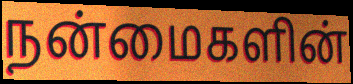
நன்மைகளின்